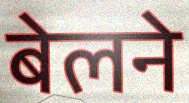
बेलने